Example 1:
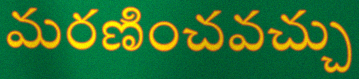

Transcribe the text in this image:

మరణించవచ్చు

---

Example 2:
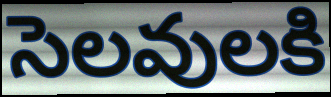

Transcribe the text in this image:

సెలవులకి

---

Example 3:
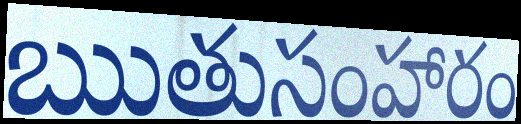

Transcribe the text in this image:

ఋతుసంహారం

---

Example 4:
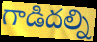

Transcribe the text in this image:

గాడిదల్ని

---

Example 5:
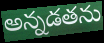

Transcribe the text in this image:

అన్నడతను